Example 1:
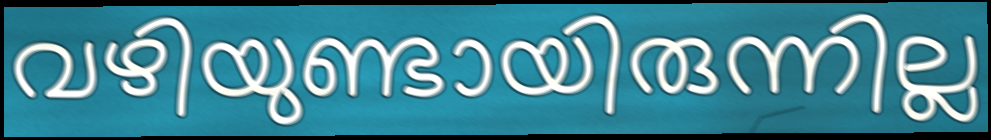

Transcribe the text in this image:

വഴിയുണ്ടായിരുന്നില്ല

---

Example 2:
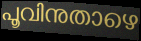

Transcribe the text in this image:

പൂവിനുതാഴെ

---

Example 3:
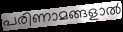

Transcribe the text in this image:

പരിണാമങ്ങളാൽ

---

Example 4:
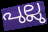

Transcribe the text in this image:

പുല്ലു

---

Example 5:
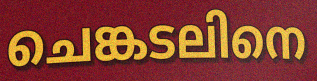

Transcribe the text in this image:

ചെങ്കടലിനെ